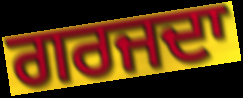
ਗਰਜਦਾ